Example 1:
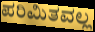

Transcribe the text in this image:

ಪರಿಮಿತವಲ್ಲ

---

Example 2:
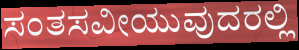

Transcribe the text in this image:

ಸಂತಸವೀಯುವುದರಲ್ಲಿ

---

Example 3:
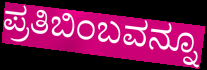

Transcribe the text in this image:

ಪ್ರತಿಬಿಂಬವನ್ನೂ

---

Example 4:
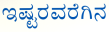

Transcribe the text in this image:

ಇಷ್ಟರವರೆಗಿನ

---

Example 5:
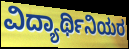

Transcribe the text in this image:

ವಿದ್ಯಾರ್ಥಿನಿಯರ